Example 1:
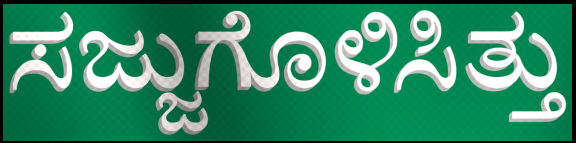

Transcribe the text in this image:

ಸಜ್ಜುಗೊಳಿಸಿತ್ತು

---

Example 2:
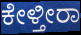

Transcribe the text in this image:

ಕೇಳ್ತೀರಾ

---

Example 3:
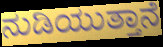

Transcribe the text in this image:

ನುಡಿಯುತ್ತಾನೆ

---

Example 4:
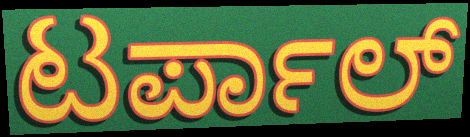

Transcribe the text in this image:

ಟರ್ಪಾಲ್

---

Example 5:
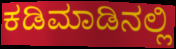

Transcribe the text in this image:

ಕಡಿಮಾಡಿನಲ್ಲಿ